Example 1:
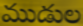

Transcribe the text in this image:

ముడుల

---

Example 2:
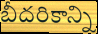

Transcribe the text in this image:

బీదరికాన్ని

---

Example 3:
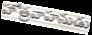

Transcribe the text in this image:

హోత్రవాహనుడు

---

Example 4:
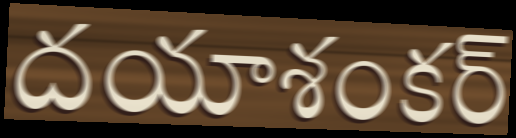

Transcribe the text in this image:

దయాశంకర్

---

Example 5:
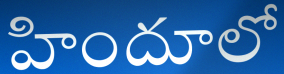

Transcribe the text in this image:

హిందూలో